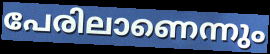
പേരിലാണെന്നും